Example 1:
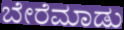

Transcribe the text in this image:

ಬೇರೆಮಾಡು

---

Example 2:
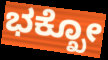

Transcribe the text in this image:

ಭಕ್ಖೋ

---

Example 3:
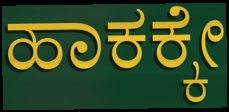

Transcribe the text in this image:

ಹಾಕಕ್ಕೇ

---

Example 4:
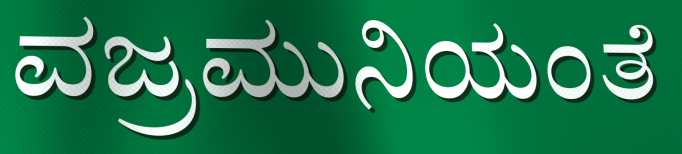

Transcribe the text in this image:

ವಜ್ರಮುನಿಯಂತೆ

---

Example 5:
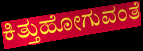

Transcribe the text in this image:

ಕಿತ್ತುಹೋಗುವಂತೆ